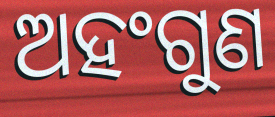
ଅହଂଗୁଣ